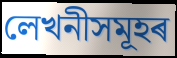
লেখনীসমূহৰ